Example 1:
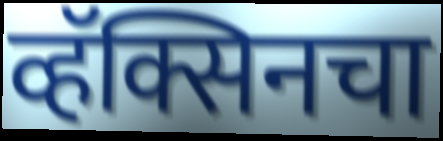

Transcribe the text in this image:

व्हॅक्सिनचा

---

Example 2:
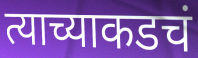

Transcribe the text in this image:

त्याच्याकडचं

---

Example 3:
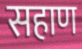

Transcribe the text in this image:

सहाण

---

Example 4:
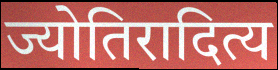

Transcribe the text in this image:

ज्योतिरादित्य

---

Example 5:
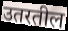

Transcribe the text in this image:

उतरतील